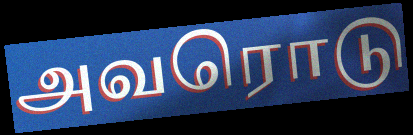
அவரொடு